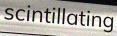
scintillating